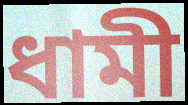
ধামী